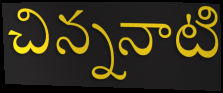
చిన్ననాటి